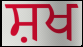
ਸ਼ਖ